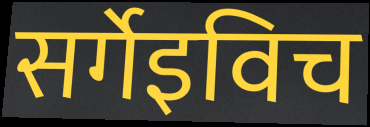
सर्गेइविच